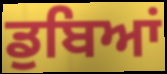
ਡੁਬਿਆਂ